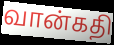
வான்கதி